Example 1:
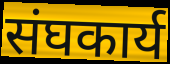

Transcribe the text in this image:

संघकार्य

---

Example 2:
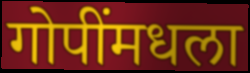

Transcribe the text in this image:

गोपींमधला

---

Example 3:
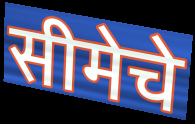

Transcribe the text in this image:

सीमेचे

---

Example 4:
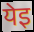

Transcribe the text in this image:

येइ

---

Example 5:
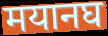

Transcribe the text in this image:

मयानघ